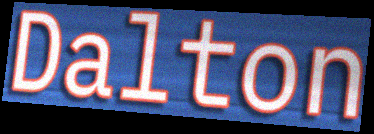
Dalton